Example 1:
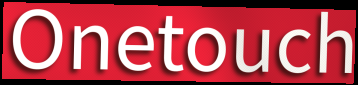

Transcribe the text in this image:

Onetouch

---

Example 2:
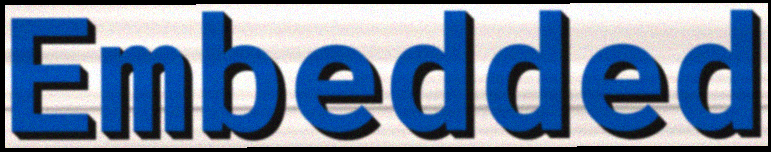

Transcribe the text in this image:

Embedded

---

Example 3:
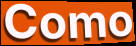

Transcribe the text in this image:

Como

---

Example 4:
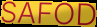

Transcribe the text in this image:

SAFOD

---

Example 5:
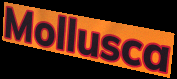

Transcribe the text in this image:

Mollusca